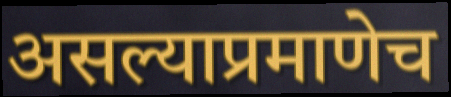
असल्याप्रमाणेच